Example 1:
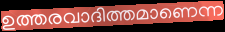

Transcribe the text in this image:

ഉത്തരവാദിത്തമാണെന്ന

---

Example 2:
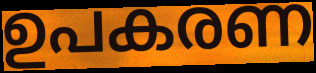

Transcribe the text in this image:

ഉപകരണ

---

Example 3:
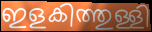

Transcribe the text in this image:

ഇളകിത്തുള്ളി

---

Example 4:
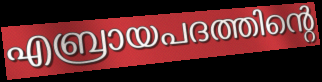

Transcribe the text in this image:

എബ്രായപദത്തിന്റെ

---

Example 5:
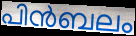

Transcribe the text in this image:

പിൻബലം